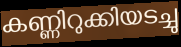
കണ്ണിറുക്കിയടച്ചു